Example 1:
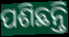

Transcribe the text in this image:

ପଶିଛନ୍ତି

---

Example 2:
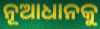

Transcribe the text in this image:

ନୂଆଧାନକୁ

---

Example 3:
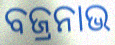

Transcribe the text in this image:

ବଜ୍ରନାଭ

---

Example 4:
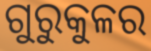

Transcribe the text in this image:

ଗୁରୁକୁଳର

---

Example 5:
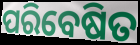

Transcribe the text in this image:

ପରିବେଷିତ